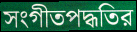
সংগীতপদ্ধতির